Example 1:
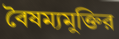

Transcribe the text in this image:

বৈষম্যমুক্তির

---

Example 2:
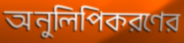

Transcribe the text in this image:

অনুলিপিকরণের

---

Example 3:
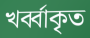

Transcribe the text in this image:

খর্ব্বাকৃত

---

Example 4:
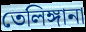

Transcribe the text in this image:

তেলিঙ্গানা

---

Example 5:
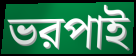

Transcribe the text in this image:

ভরপাই